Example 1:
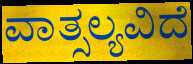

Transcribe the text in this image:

ವಾತ್ಸಲ್ಯವಿದೆ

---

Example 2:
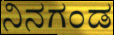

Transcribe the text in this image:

ನಿನಗಂಡ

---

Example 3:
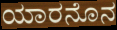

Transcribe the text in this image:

ಯಾರನೊನ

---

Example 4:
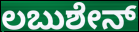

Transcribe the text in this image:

ಲಬುಶೇನ್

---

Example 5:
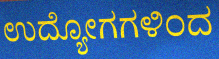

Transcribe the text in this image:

ಉದ್ಯೋಗಗಳಿಂದ